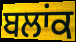
ਬਲਾਂਕ